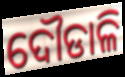
ଦୌଡାଳି